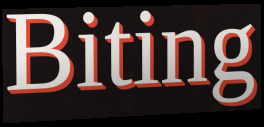
Biting